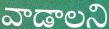
వాడాలని